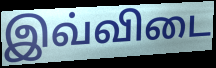
இவ்விடை